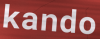
kando